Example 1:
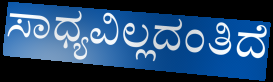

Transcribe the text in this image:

ಸಾಧ್ಯವಿಲ್ಲದಂತಿದೆ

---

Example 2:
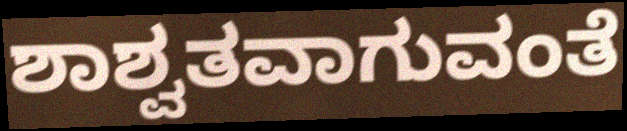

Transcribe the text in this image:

ಶಾಶ್ವತವಾಗುವಂತೆ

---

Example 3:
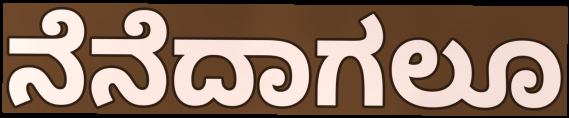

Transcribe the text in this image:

ನೆನೆದಾಗಲೂ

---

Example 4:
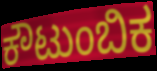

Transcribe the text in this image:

ಕೌಟುಂಬಿಕ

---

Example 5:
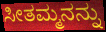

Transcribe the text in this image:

ಸೀತಮ್ಮನನ್ನು